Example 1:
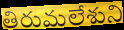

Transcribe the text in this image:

తిరుమలేశుని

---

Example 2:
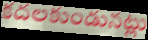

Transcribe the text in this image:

కదలకుండునట్లు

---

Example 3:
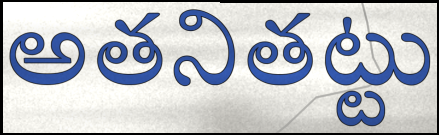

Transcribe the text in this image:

అతనితట్టు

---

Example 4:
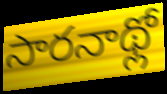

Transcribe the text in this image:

సారనాథ్లో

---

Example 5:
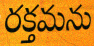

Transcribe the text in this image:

రక్తమను